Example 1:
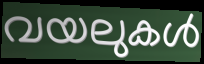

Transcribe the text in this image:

വയലുകൾ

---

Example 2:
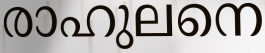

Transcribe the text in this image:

രാഹുലനെ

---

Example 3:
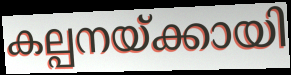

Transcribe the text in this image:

കല്പനയ്ക്കായി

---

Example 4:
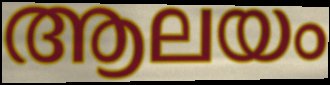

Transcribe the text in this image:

ആലയം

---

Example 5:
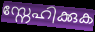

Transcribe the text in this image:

സ്നേഹിക്കുക